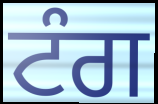
ਟੰਗ